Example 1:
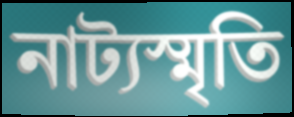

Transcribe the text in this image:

নাট্যস্মৃতি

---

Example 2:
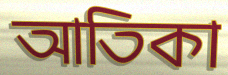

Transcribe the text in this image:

আতিকা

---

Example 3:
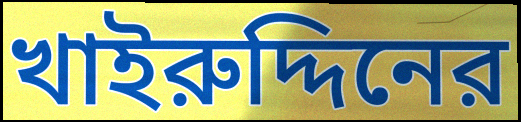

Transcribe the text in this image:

খাইরুদ্দিনের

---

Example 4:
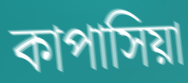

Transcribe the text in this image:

কাপাসিয়া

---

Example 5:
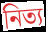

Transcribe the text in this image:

নিত্য